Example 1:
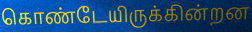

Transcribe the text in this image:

கொண்டேயிருக்கின்றன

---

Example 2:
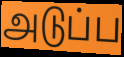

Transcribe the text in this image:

அடுப்ப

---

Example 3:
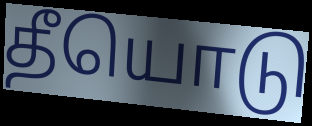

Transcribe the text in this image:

தீயொடு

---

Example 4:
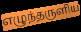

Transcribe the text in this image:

எழுந்தருளிய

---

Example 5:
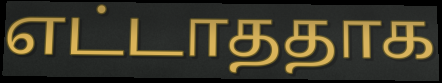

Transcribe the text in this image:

எட்டாததாக